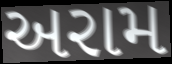
અરામ